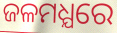
ଜଳମଧ୍ଯରେ